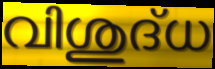
വിശുദ്‌ധ